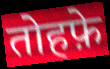
तोहफ़े